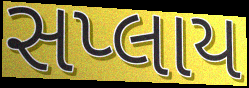
સપ્લાય